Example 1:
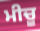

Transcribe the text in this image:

ਮੀਚੂ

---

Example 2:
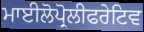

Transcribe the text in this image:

ਮਾਈਲੋਪ੍ਰੋਲੀਫਰੇਟਿਵ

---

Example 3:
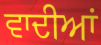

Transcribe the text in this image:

ਵਾਦੀਆਂ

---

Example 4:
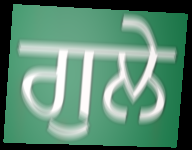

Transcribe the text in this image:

ਗੁਲੇ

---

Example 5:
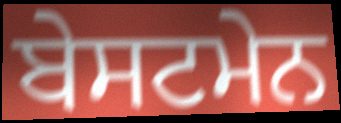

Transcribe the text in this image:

ਬੇਸਟਮੇਨ